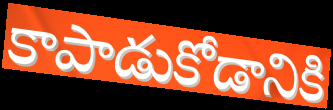
కాపాడుకోడానికి